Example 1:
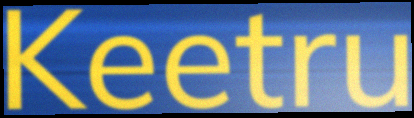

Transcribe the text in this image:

Keetru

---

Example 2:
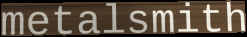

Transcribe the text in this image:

metalsmith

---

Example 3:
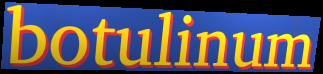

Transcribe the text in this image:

botulinum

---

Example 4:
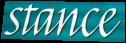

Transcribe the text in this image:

stance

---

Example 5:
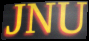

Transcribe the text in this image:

JNU